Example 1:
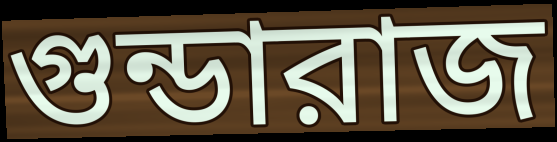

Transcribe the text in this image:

গুন্ডারাজ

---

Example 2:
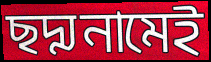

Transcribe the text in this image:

ছদ্মনামেই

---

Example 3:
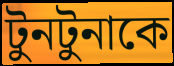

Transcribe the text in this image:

টুনটুনাকে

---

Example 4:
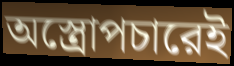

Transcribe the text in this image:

অস্ত্রোপচারেই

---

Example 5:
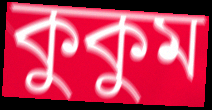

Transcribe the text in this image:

কুকুম